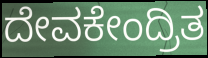
ದೇವಕೇಂದ್ರಿತ